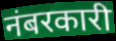
नंबरकारी